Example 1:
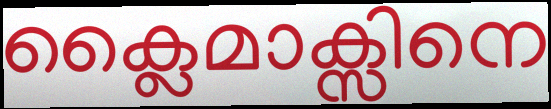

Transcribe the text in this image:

ക്ലൈമാക്സിനെ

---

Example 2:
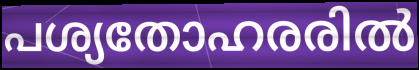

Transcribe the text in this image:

പശ്യതോഹരരിൽ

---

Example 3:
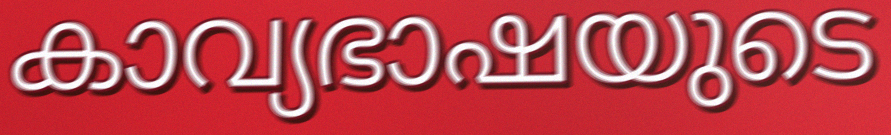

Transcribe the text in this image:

കാവ്യഭാഷയുടെ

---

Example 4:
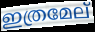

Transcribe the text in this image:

ഇത്രമേല്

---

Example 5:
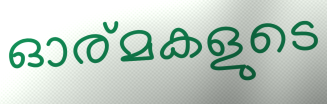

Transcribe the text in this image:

ഓര്മകളുടെ